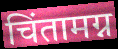
चिंतामग्न